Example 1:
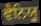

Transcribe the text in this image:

ਵੈਨਿਯੂ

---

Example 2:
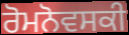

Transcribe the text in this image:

ਰੋਮਨੋਵਸਕੀ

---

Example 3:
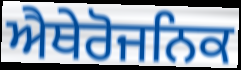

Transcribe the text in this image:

ਐਥੇਰੋਜਨਿਕ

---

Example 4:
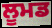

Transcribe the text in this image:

ਲੂਮਡ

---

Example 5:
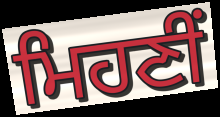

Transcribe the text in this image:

ਮਿਹਣੀਂ